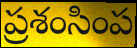
ప్రశంసింప